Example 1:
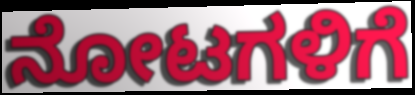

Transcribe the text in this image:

ನೋಟಗಳಿಗೆ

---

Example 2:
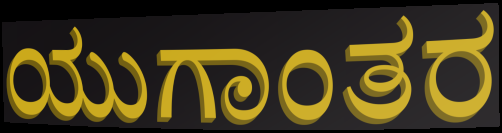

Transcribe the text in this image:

ಯುಗಾಂತರ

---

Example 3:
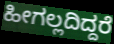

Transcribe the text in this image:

ಹೀಗಲ್ಲದಿದ್ದರೆ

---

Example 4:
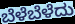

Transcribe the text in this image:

ಬೆಳೆಬೆಳೆದು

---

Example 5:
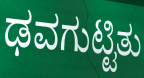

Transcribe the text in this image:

ಢವಗುಟ್ಟಿತು